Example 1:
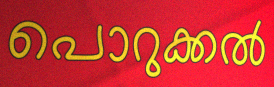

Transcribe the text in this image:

പൊറുക്കൽ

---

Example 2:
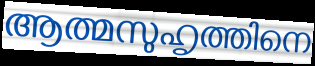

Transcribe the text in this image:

ആത്മസുഹൃത്തിനെ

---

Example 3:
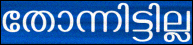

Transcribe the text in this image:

തോന്നിട്ടില്ല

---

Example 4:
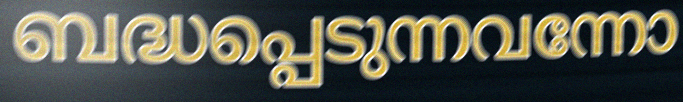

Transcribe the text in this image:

ബദ്ധപ്പെടുന്നവന്നോ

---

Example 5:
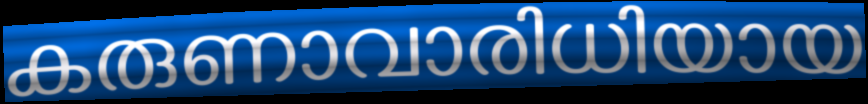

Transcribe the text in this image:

കരുണാവാരിധിയായ